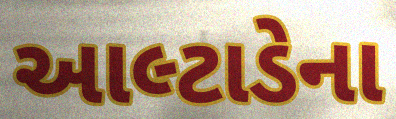
આલ્ટાડેના